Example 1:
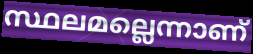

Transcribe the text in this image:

സ്ഥലമല്ലെന്നാണ്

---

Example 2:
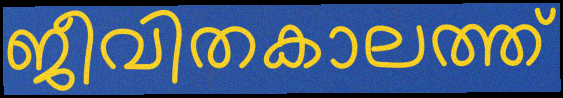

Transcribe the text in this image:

ജീവിതകാലത്ത്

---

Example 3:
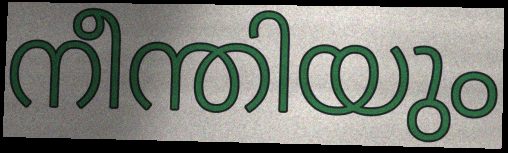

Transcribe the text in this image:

നീന്തിയും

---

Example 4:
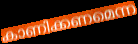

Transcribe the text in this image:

കാണിക്കണമെന്ന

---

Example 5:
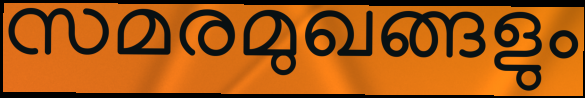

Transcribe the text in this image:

സമരമുഖങ്ങളും